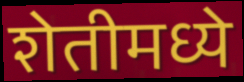
शेतीमध्ये